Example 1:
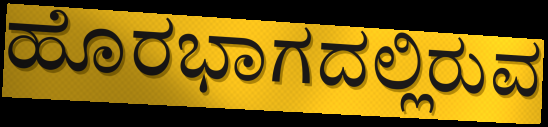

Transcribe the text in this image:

ಹೊರಭಾಗದಲ್ಲಿರುವ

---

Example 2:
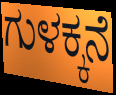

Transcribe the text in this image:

ಗುಳಕ್ಕನೆ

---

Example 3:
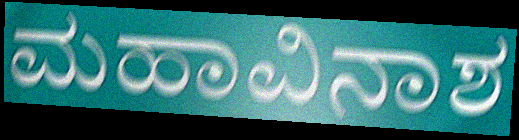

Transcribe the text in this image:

ಮಹಾವಿನಾಶ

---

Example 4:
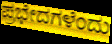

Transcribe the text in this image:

ಪ್ರಭೇದಗಳೆಂದು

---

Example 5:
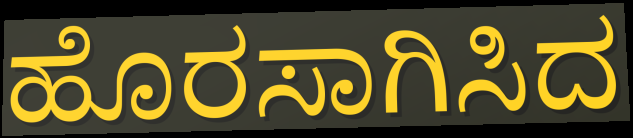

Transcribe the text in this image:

ಹೊರಸಾಗಿಸಿದ